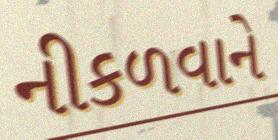
નીકળવાને